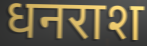
धनराश